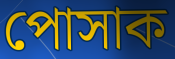
পোসাক